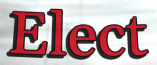
Elect